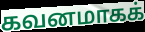
கவனமாகக்